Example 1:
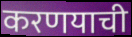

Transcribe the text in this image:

करणयाची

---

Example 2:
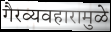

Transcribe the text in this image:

गैरव्यवहारामुळे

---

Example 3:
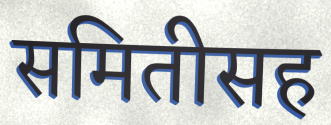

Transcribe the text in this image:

समितीसह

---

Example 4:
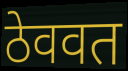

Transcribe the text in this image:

ठेववत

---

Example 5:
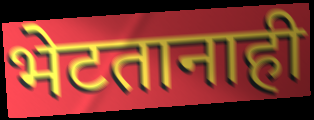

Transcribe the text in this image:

भेटतानाही